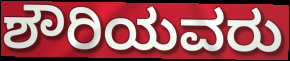
ಶೌರಿಯವರು